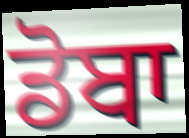
ਡੋਬਾ